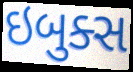
ઇબુક્સ